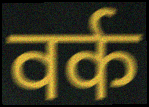
वर्क